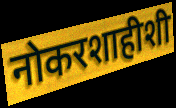
नोकरशाहीशी